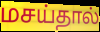
மசய்தால்